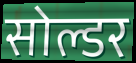
सोल्डर